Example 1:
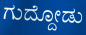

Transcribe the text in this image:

ಗುದ್ದೋಡು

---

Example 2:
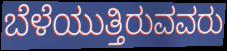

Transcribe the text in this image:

ಬೆಳೆಯುತ್ತಿರುವವರು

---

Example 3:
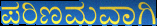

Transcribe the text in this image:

ಪರಿಣಮವಾಗಿ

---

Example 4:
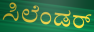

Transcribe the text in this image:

ಸಿಲೆಂಡರ್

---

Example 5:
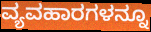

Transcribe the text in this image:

ವ್ಯವಹಾರಗಳನ್ನೂ